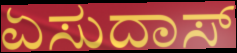
ಏಸುದಾಸ್